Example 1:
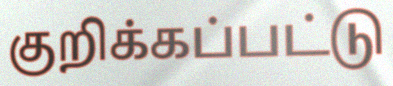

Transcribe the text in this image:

குறிக்கப்பட்டு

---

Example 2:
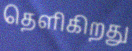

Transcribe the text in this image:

தெளிகிறது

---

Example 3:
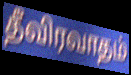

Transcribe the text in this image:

தீவிரவாதம்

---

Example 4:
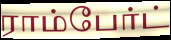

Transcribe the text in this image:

ராம்பேர்ட்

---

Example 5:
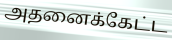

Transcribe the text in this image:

அதனைக்கேட்ட